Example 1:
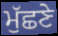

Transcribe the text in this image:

ਮੁੱਛਣੇ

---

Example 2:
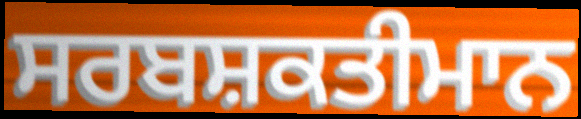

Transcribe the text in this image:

ਸਰਬਸ਼ਕਤੀਮਾਨ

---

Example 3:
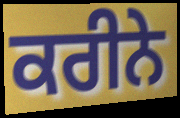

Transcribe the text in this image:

ਕਰੀਨੇ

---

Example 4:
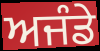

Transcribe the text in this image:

ਅਜੰਡੇ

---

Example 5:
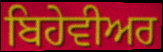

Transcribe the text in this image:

ਬਿਹੇਵੀਅਰ